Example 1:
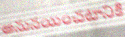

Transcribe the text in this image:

అనునయించటానికి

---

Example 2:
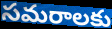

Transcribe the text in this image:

సమరాలకు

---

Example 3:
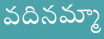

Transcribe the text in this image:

వదినమ్మా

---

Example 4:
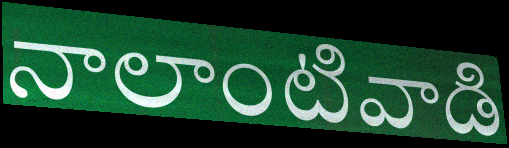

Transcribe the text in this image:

నాలాంటివాడి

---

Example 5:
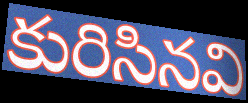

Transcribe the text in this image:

కురిసినవి